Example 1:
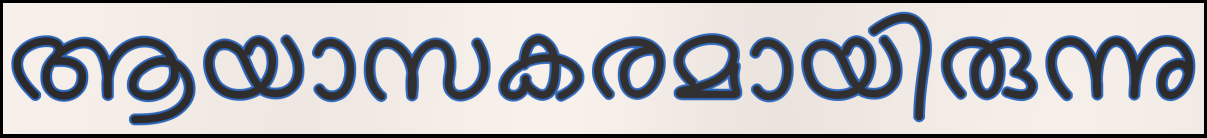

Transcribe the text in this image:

ആയാസകരമായിരുന്നു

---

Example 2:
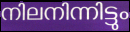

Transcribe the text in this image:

നിലനിന്നിട്ടും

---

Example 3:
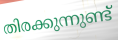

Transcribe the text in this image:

തിരക്കുന്നുണ്ട്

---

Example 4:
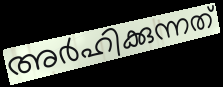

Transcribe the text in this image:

അർഹിക്കുന്നത്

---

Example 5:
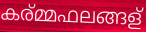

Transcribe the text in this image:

കര്മ്മഫലങ്ങള്